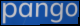
pango